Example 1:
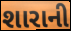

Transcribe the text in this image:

શારાની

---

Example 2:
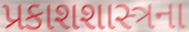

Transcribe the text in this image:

પ્રકાશશાસ્ત્રના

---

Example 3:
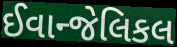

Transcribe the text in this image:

ઈવાન્જેલિકલ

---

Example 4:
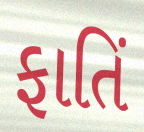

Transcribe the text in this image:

ફાતિં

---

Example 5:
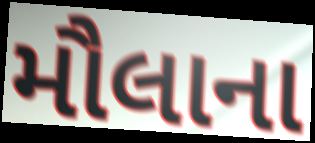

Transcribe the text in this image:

મૌલાના